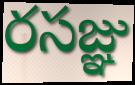
రసజ్ఞు